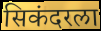
सिकंदरला